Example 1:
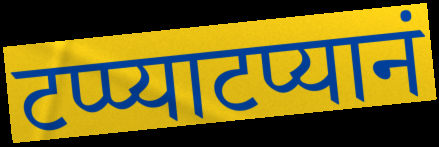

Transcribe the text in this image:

टप्प्याटप्यानं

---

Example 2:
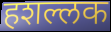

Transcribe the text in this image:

हशल्लक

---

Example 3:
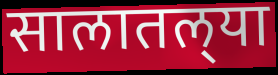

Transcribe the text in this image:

सालातल्या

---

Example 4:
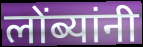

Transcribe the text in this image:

लोंब्यांनी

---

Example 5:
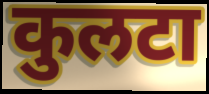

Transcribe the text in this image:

कुलटा